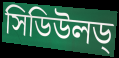
সিডিউলড্